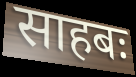
साहबः